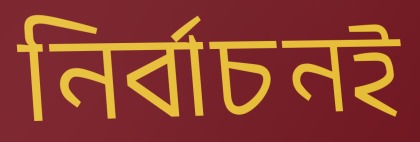
নির্বাচনই